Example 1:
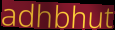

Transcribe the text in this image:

adhbhut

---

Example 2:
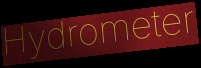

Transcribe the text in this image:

Hydrometer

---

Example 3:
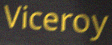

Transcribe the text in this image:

Viceroy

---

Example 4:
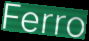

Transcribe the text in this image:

Ferro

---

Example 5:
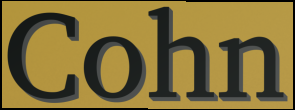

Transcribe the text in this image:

Cohn